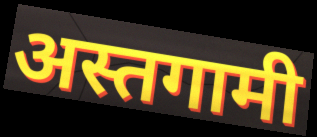
अस्तगामी